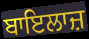
ਬਾਇਲਾਜ਼